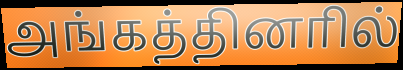
அங்கத்தினரில்